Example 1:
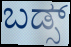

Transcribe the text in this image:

ಬಡ್ಸ್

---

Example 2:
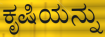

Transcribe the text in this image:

ಕೃಷಿಯನ್ನು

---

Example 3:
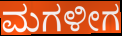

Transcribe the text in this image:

ಮಗಳೀಗ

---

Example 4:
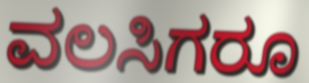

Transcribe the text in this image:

ವಲಸಿಗರೂ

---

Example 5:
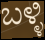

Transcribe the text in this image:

ಬಳ್ಳಿ